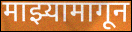
माझ्यामागून